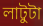
লাটুটা